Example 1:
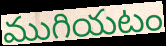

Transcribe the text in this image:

ముగియటం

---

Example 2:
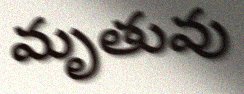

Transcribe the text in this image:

మృతువు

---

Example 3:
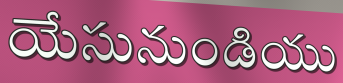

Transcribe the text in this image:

యేసునుండియు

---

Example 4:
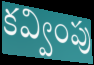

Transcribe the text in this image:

కవ్వింపు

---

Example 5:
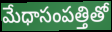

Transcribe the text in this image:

మేధాసంపత్తితో